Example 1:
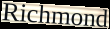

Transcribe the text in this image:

Richmond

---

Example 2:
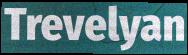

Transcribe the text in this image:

Trevelyan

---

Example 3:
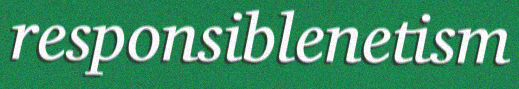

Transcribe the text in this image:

responsiblenetism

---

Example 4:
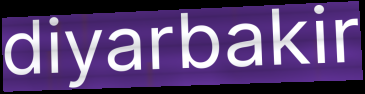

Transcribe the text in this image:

diyarbakir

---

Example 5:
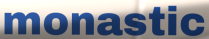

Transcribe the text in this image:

monastic